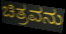
ಚಿತ್ರವನು